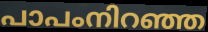
പാപംനിറഞ്ഞ